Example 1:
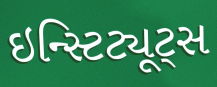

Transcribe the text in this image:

ઇન્સ્ટિટ્યૂટ્સ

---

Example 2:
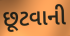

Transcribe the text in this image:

છૂટવાની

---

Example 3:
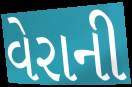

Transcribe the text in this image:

વેરાની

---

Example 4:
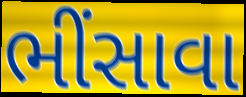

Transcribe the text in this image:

ભીંસાવા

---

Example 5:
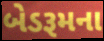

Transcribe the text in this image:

બેડરૂમના